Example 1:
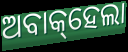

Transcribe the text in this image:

ଅବାକ୍‌ହେଲା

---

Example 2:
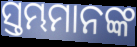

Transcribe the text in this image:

ସ୍ତମ୍ଭମାନଙ୍କ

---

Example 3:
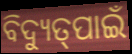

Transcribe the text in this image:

ବିଦ୍ୟୁତ୍‌ପାଇଁ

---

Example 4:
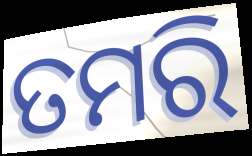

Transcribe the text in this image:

ତମରି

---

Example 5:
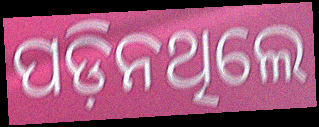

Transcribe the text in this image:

ପଡ଼ିନଥିଲେ